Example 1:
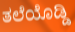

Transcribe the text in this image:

ತಲೆಯೊಡ್ಡಿ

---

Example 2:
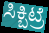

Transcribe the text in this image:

ಸಿಕ್ಬಿಟ್ರೆ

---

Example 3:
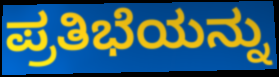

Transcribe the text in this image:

ಪ್ರತಿಭೆಯನ್ನು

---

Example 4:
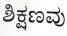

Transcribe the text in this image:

ಶಿಕ್ಷಣವು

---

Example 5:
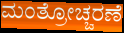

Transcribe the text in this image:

ಮಂತ್ರೋಚ್ಚರಣೆ